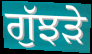
ਗੁੱਝੜੇ